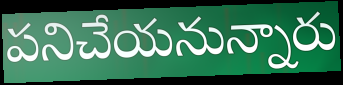
పనిచేయనున్నారు